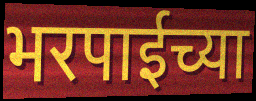
भरपाईच्या